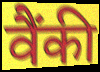
वैंकी